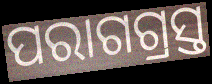
ପରାଗଗ୍ରସ୍ତ